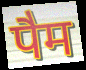
पैम